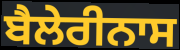
ਬੈਲੇਰੀਨਾਸ